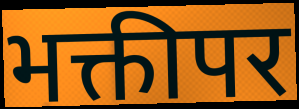
भक्तीपर